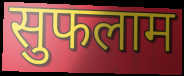
सुफलाम